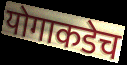
योगाकडेच